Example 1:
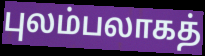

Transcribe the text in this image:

புலம்பலாகத்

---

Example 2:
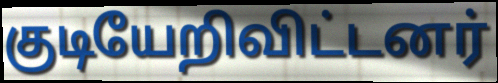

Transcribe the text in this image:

குடியேறிவிட்டனர்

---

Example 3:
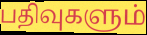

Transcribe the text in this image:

பதிவுகளும்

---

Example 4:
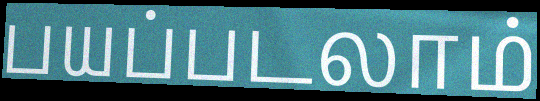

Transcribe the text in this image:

பயப்படலாம்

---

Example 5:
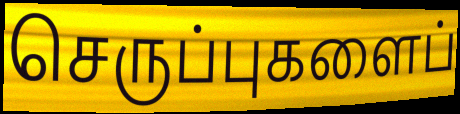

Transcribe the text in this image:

செருப்புகளைப்